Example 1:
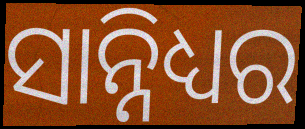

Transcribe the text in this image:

ସାନ୍ନିଧ୍ୟର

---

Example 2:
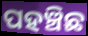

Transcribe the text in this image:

ପହଞ୍ଚିଛ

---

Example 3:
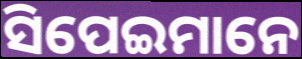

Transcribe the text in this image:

ସିପେଇମାନେ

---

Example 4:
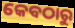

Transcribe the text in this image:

କେବଠାରୁ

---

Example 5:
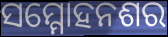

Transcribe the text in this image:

ସମ୍ମୋହନଶର